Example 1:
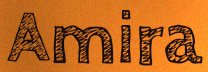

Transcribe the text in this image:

Amira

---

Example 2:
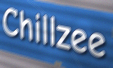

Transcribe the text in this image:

Chillzee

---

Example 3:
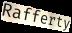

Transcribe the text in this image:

Rafferty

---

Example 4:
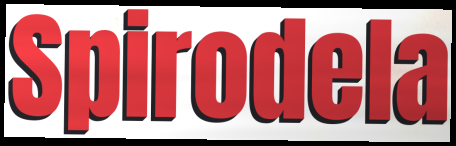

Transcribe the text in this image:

Spirodela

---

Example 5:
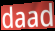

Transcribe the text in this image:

daad